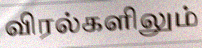
விரல்களிலும்